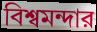
বিশ্বমন্দার